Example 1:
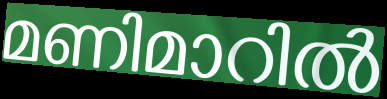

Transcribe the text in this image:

മണിമാറിൽ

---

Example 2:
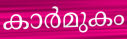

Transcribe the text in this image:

കാർമുകം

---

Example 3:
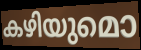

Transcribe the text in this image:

കഴിയുമൊ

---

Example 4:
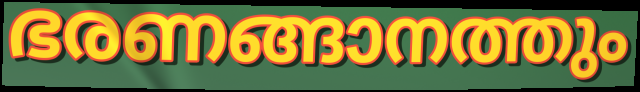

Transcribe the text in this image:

ഭരണങ്ങാനത്തും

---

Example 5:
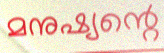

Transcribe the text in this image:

മനുഷ്യന്റെ